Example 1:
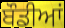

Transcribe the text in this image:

ਬੌਡੀਆਂ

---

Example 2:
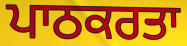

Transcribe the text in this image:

ਪਾਠਕਰਤਾ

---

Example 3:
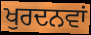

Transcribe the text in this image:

ਖੁਰਦਨਵਾਂ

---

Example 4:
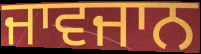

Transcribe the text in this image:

ਜਾਵਜਾਨ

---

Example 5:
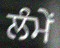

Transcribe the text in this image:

ਲੰਮੇਂ